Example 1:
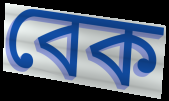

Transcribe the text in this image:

বেক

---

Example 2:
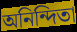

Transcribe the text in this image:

অনিন্দিতা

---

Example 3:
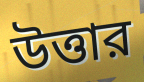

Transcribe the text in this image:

উত্তার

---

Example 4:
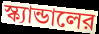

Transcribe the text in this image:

স্ক্যান্ডালের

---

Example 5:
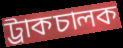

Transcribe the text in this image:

ট্রাকচালক